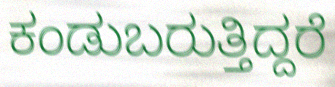
ಕಂಡುಬರುತ್ತಿದ್ದರೆ